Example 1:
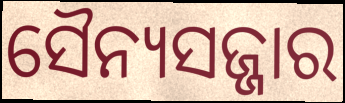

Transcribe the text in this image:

ସୈନ୍ୟସଜ୍ଜାର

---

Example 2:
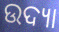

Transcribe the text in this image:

ଉଦ୍ୟା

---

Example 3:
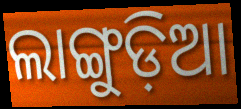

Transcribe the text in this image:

ଲାଙ୍ଗୁଡ଼ିଆ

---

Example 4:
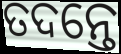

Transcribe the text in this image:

ତଦନ୍ତେ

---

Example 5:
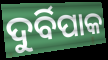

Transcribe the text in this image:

ଦୁର୍ବିପାକ